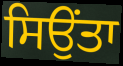
ਸਿਉਂਤਾ